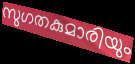
സുഗതകുമാരിയും